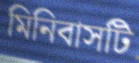
মিনিবাসটি